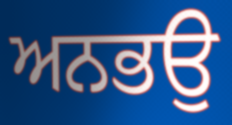
ਅਨਭਉ